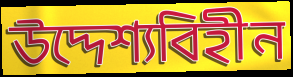
উদ্দেশ্যবিহীন